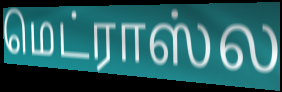
மெட்ராஸ்ல